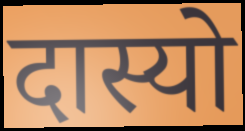
दास्यो